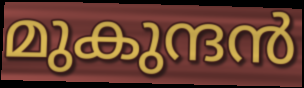
മുകുന്ദൻ